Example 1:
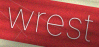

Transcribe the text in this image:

wrest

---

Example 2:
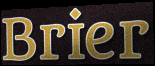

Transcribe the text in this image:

Brier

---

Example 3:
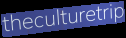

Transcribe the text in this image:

theculturetrip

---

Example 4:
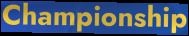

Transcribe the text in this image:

Championship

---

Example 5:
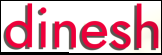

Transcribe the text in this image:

dinesh